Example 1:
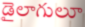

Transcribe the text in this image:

డైలాగులూ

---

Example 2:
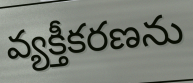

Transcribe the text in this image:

వ్యక్తీకరణను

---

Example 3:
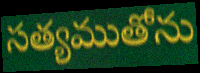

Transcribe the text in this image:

సత్యముతోను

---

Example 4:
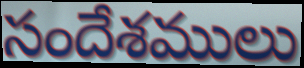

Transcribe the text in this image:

సందేశములు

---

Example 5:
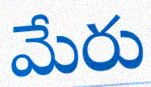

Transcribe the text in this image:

మేరు